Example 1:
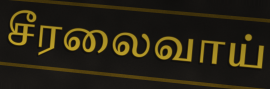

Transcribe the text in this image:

சீரலைவாய்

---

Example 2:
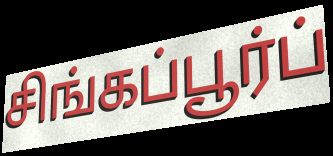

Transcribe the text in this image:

சிங்கப்பூர்ப்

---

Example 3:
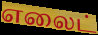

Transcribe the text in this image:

எலைட்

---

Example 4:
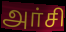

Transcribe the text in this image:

அர்சி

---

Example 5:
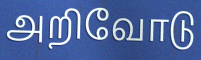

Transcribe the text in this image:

அறிவோடு